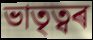
ভাতৃত্বৰ